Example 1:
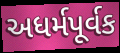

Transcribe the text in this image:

અધર્મપૂર્વક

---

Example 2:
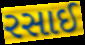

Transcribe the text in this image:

રસાઈ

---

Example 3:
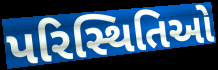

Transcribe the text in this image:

પરિસ્થિતિઓ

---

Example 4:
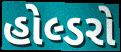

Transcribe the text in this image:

હોલ્ડરો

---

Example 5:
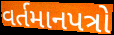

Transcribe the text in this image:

વર્તમાનપત્રો